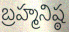
బ్రహ్మనిష్ఠ